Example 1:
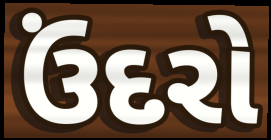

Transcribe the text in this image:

ઉંદરો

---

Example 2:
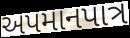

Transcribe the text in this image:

અપમાનપાત્ર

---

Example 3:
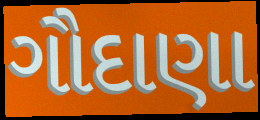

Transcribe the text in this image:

ગૌદાણા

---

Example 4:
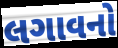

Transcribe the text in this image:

લગાવનો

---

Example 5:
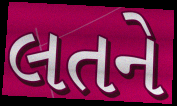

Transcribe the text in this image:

લતને